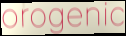
orogenic